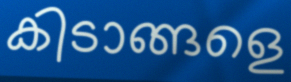
കിടാങ്ങളെ